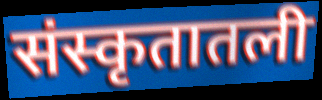
संस्कृतातली